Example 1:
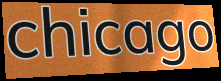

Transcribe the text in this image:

chicago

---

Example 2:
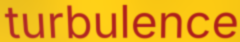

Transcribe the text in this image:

turbulence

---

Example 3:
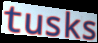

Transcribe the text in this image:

tusks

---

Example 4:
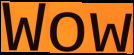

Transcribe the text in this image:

Wow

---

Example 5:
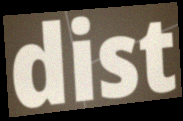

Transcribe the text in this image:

dist